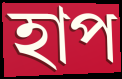
হাপ